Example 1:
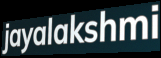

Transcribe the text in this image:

jayalakshmi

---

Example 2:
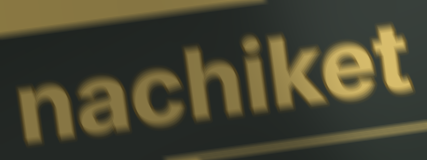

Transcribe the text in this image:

nachiket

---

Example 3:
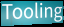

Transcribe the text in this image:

Tooling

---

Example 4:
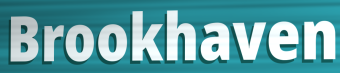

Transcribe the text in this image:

Brookhaven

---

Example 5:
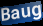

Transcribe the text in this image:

Baug